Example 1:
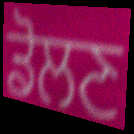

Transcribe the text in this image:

ਡੋਲਣ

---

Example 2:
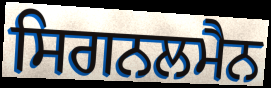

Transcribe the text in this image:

ਸਿਗਨਲਮੈਨ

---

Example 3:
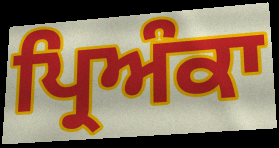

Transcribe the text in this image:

ਪ੍ਰਿਅੰਕਾ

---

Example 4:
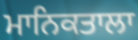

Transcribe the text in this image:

ਮਾਨਿਕਤਾਲਾ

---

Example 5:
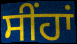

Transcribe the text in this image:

ਸੀਂਹਾਂ